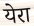
येरा